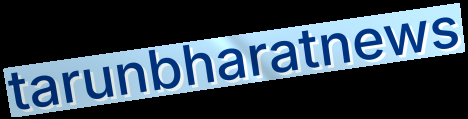
tarunbharatnews